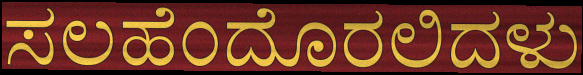
ಸಲಹೆಂದೊರಲಿದಳು